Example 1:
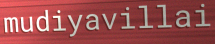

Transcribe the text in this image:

mudiyavillai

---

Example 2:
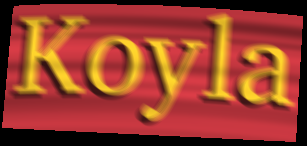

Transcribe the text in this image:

Koyla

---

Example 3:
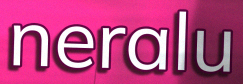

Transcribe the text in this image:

neralu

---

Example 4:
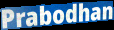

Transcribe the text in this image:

Prabodhan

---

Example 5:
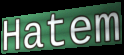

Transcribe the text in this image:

Hatem